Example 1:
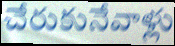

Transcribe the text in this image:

చేరుకునేవాళ్లు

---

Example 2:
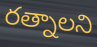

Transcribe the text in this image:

రత్నాలని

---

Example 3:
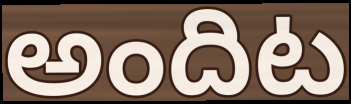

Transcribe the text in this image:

అందిట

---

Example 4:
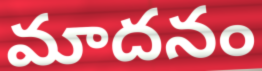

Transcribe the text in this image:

మాదనం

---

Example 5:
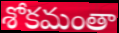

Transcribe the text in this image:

శోకమంతా